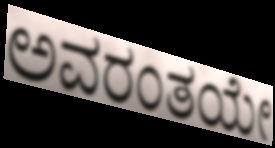
ಅವರಂತಯೇ